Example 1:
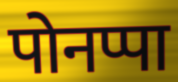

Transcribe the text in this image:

पोनप्पा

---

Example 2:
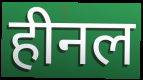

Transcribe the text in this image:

हीनल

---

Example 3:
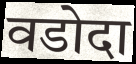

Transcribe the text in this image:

वडोदा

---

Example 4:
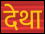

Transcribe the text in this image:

देथा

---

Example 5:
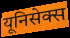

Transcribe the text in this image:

यूनिसेक्स